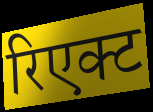
रिएक्ट